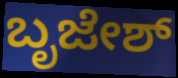
ಬೃಜೇಶ್